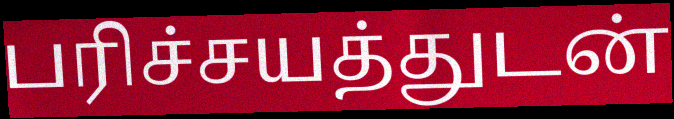
பரிச்சயத்துடன்